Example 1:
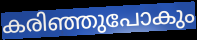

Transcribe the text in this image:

കരിഞ്ഞുപോകും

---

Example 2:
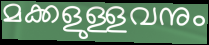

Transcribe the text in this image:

മക്കളുള്ളവനും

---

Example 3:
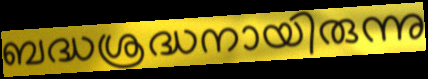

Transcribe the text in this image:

ബദ്ധശ്രദ്ധനായിരുന്നു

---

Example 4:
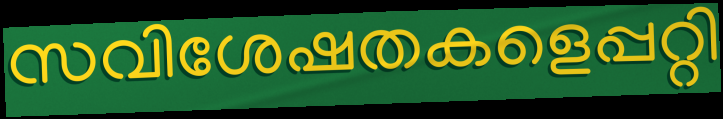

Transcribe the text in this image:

സവിശേഷതകളെപ്പറ്റി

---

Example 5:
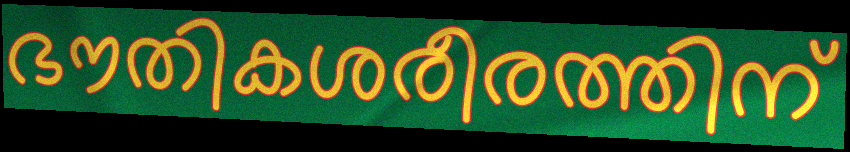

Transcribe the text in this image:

ഭൗതികശരീരത്തിന്